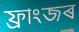
ফ্ৰাংজৰ